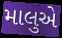
માલુએ